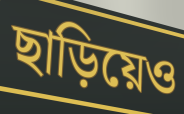
ছাড়িয়েও